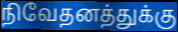
நிவேதனத்துக்கு